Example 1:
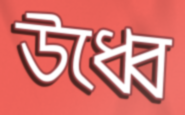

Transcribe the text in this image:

উধ্বে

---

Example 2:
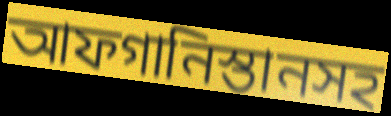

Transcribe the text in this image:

আফগানিস্তানসহ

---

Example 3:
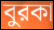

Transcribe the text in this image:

বুরকা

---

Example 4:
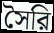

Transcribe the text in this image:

সৈরি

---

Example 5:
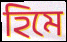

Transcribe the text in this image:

হিমে